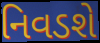
નિવડશે